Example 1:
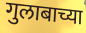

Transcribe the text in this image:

गुलाबाच्या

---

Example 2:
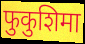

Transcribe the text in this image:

फुकुशिमा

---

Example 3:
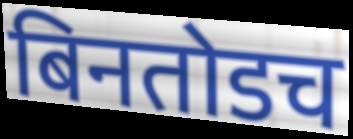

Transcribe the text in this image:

बिनतोडच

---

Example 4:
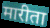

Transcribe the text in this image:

मारीता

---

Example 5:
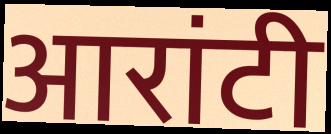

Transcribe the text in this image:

आरांटी